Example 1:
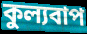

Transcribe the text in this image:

কুল্যবাপ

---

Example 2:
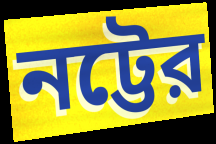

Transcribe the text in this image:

নট্টের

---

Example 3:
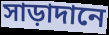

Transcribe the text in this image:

সাড়াদানে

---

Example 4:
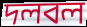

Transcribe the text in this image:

দলবল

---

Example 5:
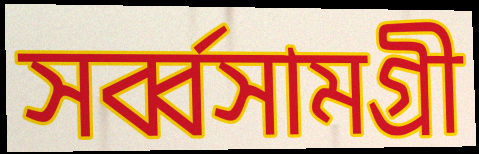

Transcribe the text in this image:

সর্ব্বসামগ্রী